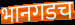
भानगडच